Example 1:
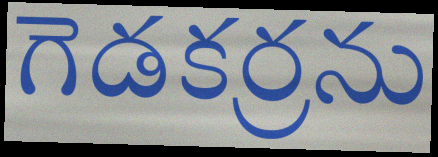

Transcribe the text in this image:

గెడకర్రను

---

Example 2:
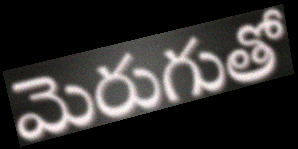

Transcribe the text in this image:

మెరుగుతో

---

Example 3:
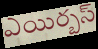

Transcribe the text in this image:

ఎయిర్బస్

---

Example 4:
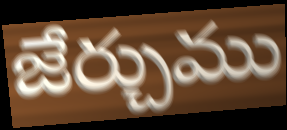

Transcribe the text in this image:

జేర్చుము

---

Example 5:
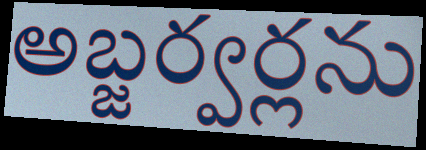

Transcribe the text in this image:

అబ్జర్వర్లను